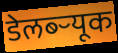
डेलब्ऱ्यूक